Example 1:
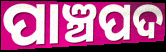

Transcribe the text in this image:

ପାଞ୍ଚପଦ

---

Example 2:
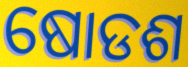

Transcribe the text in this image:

ଷୋଡଶ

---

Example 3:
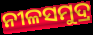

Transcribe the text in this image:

ନୀଳସମୁଦ୍ର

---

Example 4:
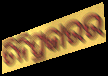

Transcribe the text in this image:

ତିନିପ୍ରକାରର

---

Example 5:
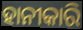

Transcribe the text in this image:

ହାନୀକାରି